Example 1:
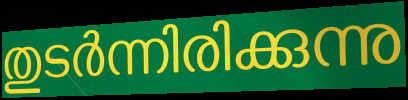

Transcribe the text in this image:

തുടർന്നിരിക്കുന്നു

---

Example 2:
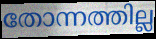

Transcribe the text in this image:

തോന്നത്തില്ല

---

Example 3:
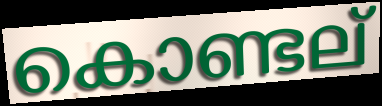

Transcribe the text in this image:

കൊണ്ടല്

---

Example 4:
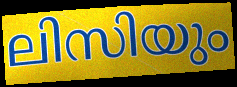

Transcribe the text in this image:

ലിസിയും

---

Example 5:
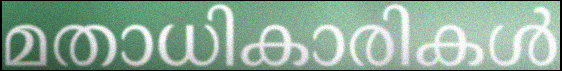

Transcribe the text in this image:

മതാധികാരികൾ